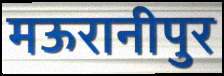
मऊरानीपुर